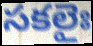
సకలైః